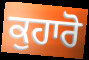
ਕੁਹਾਰੋ